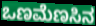
ಒಣಮೆಣಸಿನ